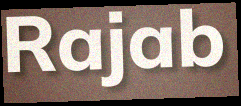
Rajab